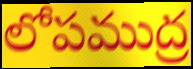
లోపముద్ర